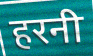
हरनी